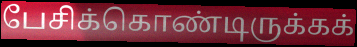
பேசிக்கொண்டிருக்கக்